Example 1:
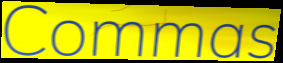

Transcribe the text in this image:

Commas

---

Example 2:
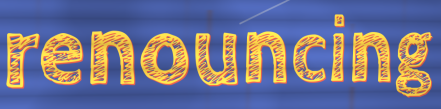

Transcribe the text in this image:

renouncing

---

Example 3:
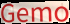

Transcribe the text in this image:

Gemo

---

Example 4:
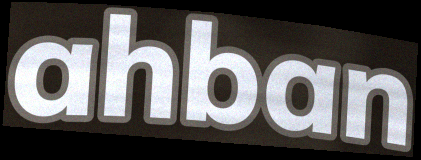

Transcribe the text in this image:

ahban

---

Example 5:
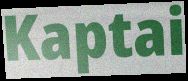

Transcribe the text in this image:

Kaptai